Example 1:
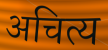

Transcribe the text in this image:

अचित्य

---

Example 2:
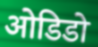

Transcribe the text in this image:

ओडिडो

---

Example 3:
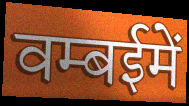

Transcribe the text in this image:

वम्बईमें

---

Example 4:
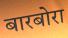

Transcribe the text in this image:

बारबोरा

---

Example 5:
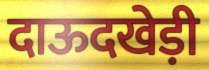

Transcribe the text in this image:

दाऊदखेड़ी